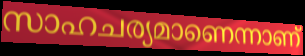
സാഹചര്യമാണെന്നാണ്